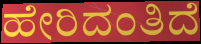
ಹೇರಿದಂತಿದೆ